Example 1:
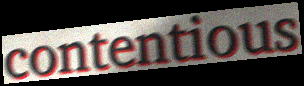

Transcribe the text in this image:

contentious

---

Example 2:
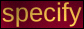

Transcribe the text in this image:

specify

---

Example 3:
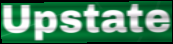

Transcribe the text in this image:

Upstate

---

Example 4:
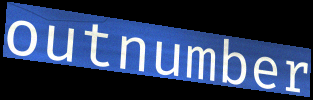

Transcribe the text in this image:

outnumber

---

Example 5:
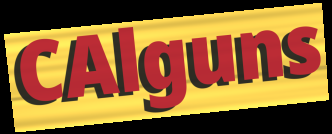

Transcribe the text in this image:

CAlguns